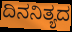
ದಿನನಿತ್ಯದ